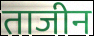
ताजीन